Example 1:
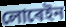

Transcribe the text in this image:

লোৰেইন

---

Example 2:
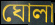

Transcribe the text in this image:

ঘোলা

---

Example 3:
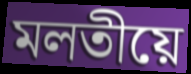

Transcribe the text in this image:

মলতীয়ে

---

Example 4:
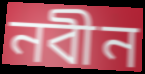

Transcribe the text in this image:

নবীন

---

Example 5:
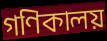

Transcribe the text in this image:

গণিকালয়